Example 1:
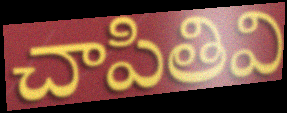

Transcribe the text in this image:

చాపితివి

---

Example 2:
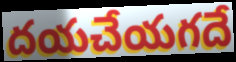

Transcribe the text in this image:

దయచేయగదే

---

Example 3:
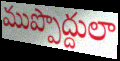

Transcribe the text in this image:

ముప్పొద్దులా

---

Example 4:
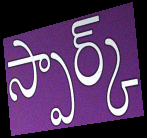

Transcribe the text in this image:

స్పార్క్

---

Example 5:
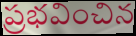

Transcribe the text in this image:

ప్రభవించిన